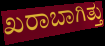
ಖರಾಬಾಗಿತ್ತು